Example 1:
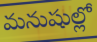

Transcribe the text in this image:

మనుషుల్లో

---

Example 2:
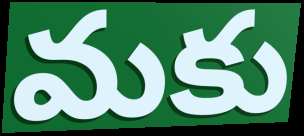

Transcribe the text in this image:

మకు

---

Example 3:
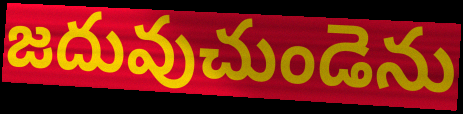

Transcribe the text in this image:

జదువుచుండెను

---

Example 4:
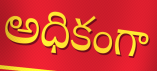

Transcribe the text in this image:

అధికంగా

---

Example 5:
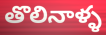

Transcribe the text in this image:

తొలినాళ్ళ